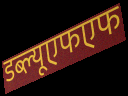
डब्ल्यूएफएफ